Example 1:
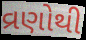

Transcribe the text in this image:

વ્રણોથી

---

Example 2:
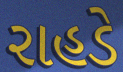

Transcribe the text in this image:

રાહડે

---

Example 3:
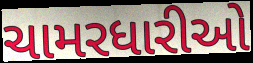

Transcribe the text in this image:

ચામરધારીઓ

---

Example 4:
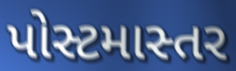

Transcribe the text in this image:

પોસ્ટમાસ્તર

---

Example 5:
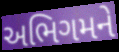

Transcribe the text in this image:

અભિગમને